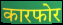
कारफोर